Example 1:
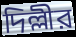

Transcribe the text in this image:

দিল্লীর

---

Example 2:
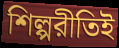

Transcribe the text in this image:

শিল্পরীতিই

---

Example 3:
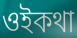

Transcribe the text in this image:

ওইকথা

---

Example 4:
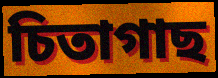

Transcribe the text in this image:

চিতাগাছ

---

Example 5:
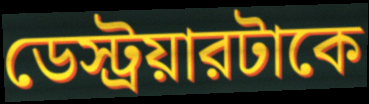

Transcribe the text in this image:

ডেস্ট্রয়ারটাকে